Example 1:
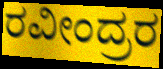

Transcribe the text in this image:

ರವೀಂದ್ರರ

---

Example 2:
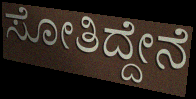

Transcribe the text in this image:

ಸೋತಿದ್ದೇನೆ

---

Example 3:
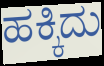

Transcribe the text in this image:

ಹಕ್ಕಿದು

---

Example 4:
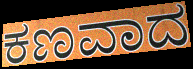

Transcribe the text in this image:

ಕಣವಾದ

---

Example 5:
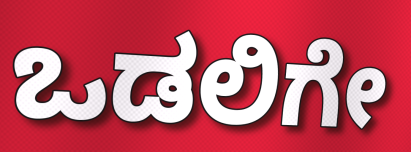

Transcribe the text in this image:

ಒಡಲಿಗೇ